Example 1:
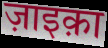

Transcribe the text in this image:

ज़ाइक़ा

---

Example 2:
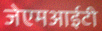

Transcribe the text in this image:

जेएमआईटी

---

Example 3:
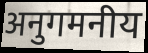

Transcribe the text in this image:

अनुगमनीय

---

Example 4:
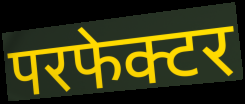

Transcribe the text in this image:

परफेक्टर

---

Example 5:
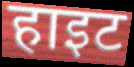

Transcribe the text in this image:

हाइट